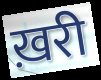
ख़री